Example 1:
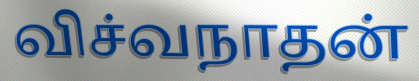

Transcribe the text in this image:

விச்வநாதன்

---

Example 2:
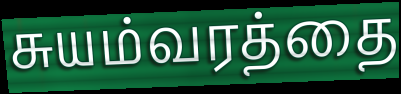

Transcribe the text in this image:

சுயம்வரத்தை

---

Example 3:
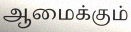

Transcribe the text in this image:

ஆமைக்கும்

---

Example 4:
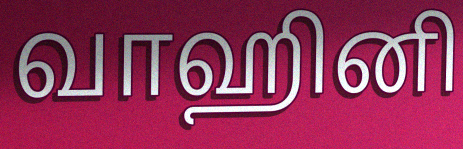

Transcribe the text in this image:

வாஹினி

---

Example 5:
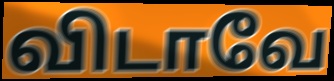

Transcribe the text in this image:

விடாவே